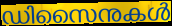
ഡിസൈനുകൾ